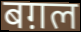
बग़ल